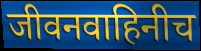
जीवनवाहिनीच